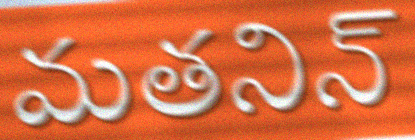
మతనిన్